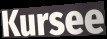
Kursee